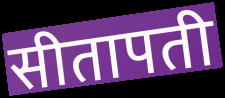
सीतापती